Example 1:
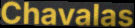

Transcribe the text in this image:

Chavalas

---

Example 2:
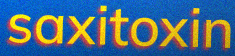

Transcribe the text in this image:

saxitoxin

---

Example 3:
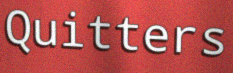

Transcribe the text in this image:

Quitters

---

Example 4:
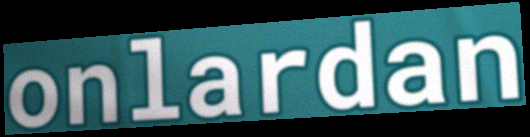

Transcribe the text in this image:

onlardan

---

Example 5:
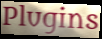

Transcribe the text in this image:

Plugins